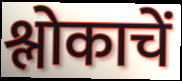
श्लोकाचें